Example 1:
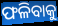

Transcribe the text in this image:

ଫଳିବାକୁ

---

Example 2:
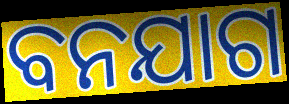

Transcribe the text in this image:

ବନଯାଗ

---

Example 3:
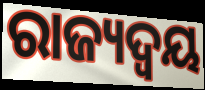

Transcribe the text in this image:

ରାଜ୍ୟଦ୍ୱୟ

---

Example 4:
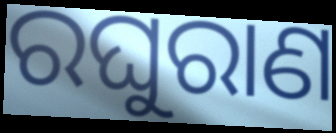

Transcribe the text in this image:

ରଘୁରାଣ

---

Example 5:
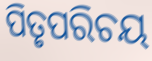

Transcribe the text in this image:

ପିତୃପରିଚୟ